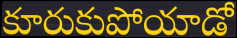
కూరుకుపోయాడో